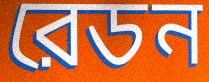
রেডন